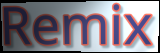
Remix